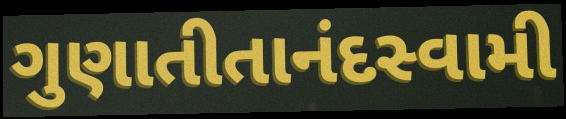
ગુણાતીતાનંદસ્વામી